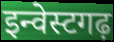
इन्वेस्टगढ़